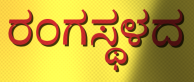
ರಂಗಸ್ಥಳದ